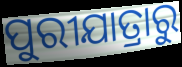
ପୁରୀଯାତ୍ରାରୁ